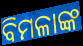
ବିମଳାଙ୍କ